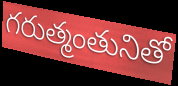
గరుత్మంతునితో